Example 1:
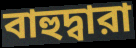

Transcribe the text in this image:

বাহুদ্বারা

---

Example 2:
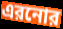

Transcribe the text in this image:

এরনোর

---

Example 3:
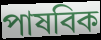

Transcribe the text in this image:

পাষবিক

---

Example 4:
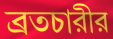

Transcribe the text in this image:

ব্রতচারীর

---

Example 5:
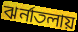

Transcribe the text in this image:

ঝর্নাতলায়